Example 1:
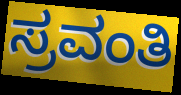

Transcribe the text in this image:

ಸ್ರವಂತಿ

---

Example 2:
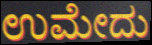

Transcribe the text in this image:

ಉಮೇದು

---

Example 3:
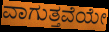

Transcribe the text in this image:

ವಾಗುತ್ತವೆಯೇ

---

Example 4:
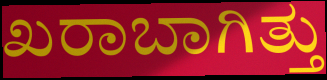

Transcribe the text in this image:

ಖರಾಬಾಗಿತ್ತು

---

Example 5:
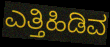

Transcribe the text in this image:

ಎತ್ತಿಹಿಡಿವ